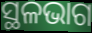
ସ୍ଥଳଭାଗ